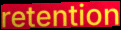
retention